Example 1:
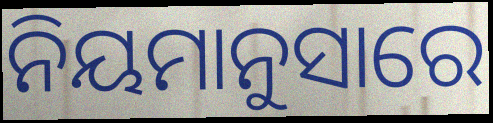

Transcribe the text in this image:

ନିୟମାନୁସାରେ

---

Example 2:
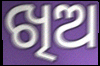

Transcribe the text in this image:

ଖିଅ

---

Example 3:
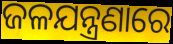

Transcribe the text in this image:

ଜଳଯନ୍ତ୍ରଣାରେ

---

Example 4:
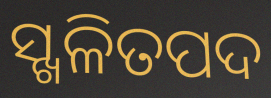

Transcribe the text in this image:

ସ୍ଖଳିତପଦ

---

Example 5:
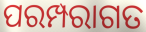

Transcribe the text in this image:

ପରମ୍ପରାଗତ